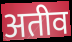
अतीव